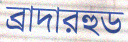
ব্রাদারহুড